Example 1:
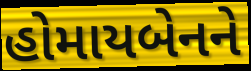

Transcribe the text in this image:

હોમાયબેનને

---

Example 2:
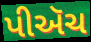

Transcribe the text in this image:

પીઍચ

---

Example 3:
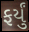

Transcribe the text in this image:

ફર્યું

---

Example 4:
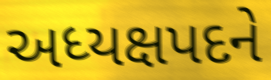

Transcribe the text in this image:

અધ્યક્ષપદને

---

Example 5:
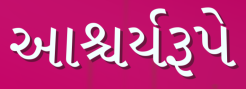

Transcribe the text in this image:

આશ્ચર્યરૂપે